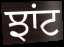
ਝਾਂਟ